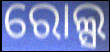
ରୋଲ୍ସ